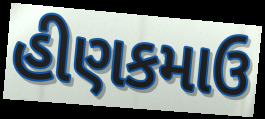
હીણકમાઉ